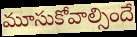
మూసుకోవాల్సిందే